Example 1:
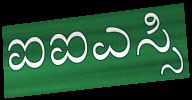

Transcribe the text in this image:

ಐಐಎಸ್ಸಿ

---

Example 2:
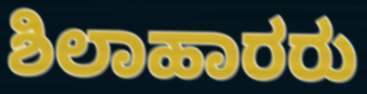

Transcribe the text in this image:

ಶಿಲಾಹಾರರು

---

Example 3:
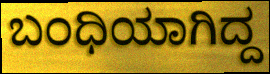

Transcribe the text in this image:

ಬಂಧಿಯಾಗಿದ್ದ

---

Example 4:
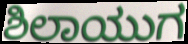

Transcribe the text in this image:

ಶಿಲಾಯುಗ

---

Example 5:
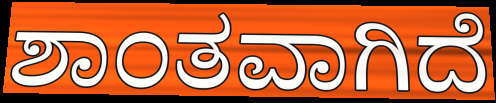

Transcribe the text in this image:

ಶಾಂತವಾಗಿದೆ